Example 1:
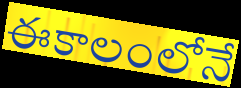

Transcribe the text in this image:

ఈకాలంలోనే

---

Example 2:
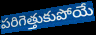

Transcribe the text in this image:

పరిగెత్తుకుపోయే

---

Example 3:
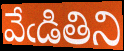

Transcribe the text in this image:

వేఁడితిని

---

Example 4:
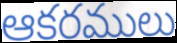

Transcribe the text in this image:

ఆకరములు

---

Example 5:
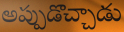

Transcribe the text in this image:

అప్పుడొచ్చాడు